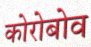
कोरोबोव